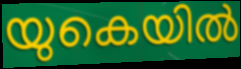
യുകെയിൽ